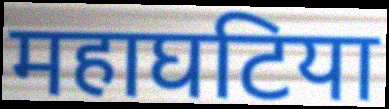
महाघटिया